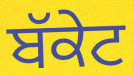
ਬੱਕੇਟ